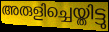
അരുളിച്ചെയ്തിട്ടു